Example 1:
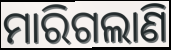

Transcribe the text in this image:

ମାରିଗଲାଣି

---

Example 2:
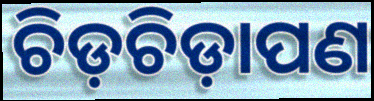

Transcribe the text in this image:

ଚିଡ଼ଚିଡ଼ାପଣ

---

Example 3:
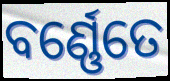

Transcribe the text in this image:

ବର୍ଣ୍ଣେତେ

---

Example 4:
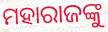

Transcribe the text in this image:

ମହାରାଜଙ୍କୁ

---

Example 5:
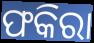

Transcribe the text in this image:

ଫକିରା